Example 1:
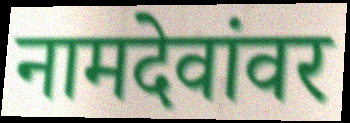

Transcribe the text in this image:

नामदेवांवर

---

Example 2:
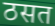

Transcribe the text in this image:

ठसत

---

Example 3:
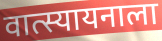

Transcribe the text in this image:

वात्स्यायनाला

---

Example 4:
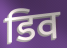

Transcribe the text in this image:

डिव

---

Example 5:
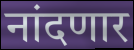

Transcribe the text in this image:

नांदणार